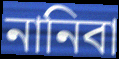
নানিবা